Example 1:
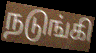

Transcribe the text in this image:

நடுங்கி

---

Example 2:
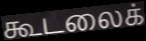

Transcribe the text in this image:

கூடலைக்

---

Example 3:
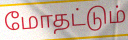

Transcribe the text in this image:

மோதட்டும்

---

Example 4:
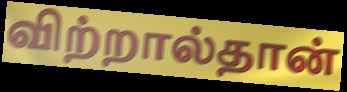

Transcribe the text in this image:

விற்றால்தான்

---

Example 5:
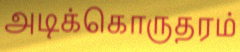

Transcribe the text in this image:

அடிக்கொருதரம்